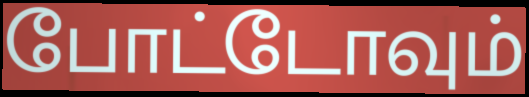
போட்டோவும்